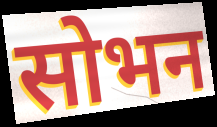
सोभन